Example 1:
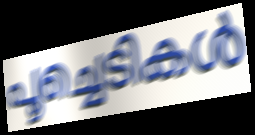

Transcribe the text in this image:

പൂച്ചെടികൾ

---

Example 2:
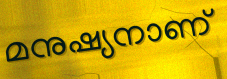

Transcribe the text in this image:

മനുഷ്യനാണ്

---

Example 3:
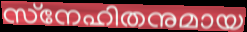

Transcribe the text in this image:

സ്‌നേഹിതനുമായ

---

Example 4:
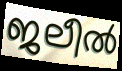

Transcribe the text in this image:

ജലീൽ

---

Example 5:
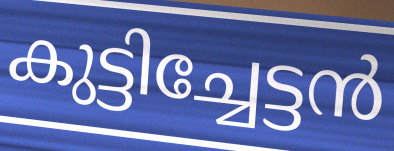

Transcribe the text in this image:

കുട്ടിച്ചേട്ടൻ